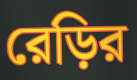
রেড়ির